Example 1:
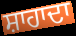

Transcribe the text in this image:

ਸ਼ਾਹਾਦਾ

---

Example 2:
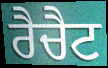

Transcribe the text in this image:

ਰੈਚੈਟ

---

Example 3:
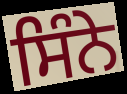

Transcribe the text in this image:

ਸਿੰਨੇ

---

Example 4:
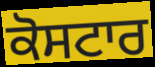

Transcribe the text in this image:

ਕੋਸਟਾਰ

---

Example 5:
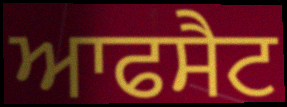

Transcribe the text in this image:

ਆਫਸੈਟ